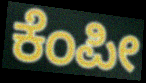
ಕೆಂಪೀ